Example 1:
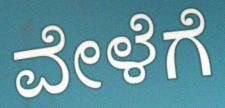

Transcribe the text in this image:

ವೇಳೆಗೆ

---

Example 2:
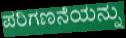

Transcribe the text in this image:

ಪರಿಗಣನೆಯನ್ನು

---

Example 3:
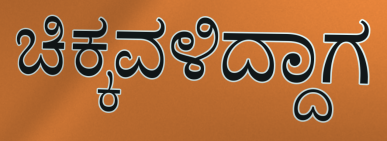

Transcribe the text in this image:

ಚಿಕ್ಕವಳಿದ್ದಾಗ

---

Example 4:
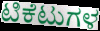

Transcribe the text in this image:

ಟಿಕೆಟುಗಳ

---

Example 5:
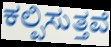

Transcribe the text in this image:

ಕಲ್ಪಿಸುತ್ತವೆ